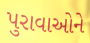
પુરાવાઓને